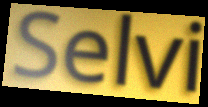
Selvi